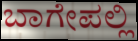
ಬಾಗೇಪಲ್ಲಿ